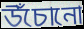
উঁচোনো